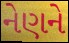
નેણને